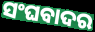
ସଂଘବାଦର